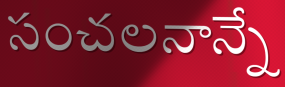
సంచలనాన్నే